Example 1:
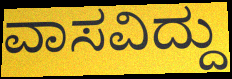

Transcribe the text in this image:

ವಾಸವಿದ್ದು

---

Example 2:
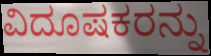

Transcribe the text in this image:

ವಿದೂಷಕರನ್ನು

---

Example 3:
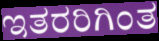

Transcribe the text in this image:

ಇತರರಿಗಿಂತ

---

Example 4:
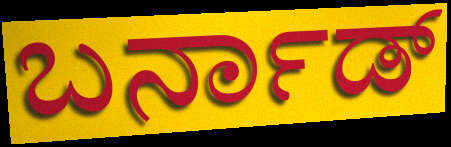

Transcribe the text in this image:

ಬರ್ನಾಡ್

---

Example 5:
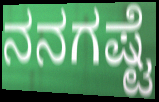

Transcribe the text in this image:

ನನಗಷ್ಟೆ